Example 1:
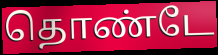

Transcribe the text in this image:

தொண்டே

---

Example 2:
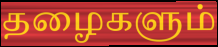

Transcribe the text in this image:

தழைகளும்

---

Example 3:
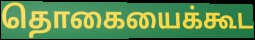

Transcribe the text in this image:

தொகையைக்கூட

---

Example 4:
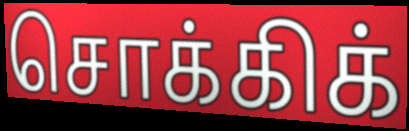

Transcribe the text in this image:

சொக்கிக்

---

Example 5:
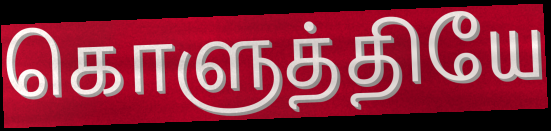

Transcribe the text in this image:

கொளுத்தியே